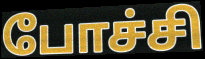
போச்சி